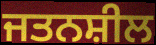
ਜਤਨਸ਼ੀਲ